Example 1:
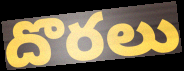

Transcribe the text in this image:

దొరలు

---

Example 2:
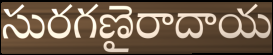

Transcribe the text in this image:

సురగణైరాదాయ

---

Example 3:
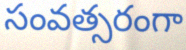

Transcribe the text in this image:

సంవత్సరంగా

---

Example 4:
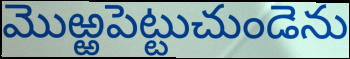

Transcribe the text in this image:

మొఱ్ఱపెట్టుచుండెను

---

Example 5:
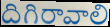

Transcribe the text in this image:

దిగిరావాలి